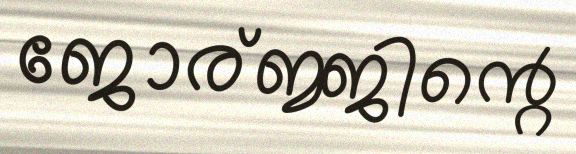
ജോര്ജ്ജിന്റെ